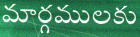
మార్గములకు